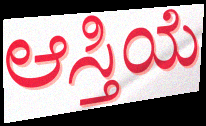
ಆಸ್ತಿಯೆ